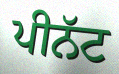
ਪੀਨੱਟ